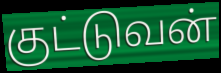
குட்டுவன்